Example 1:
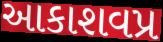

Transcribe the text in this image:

આકાશવપ્ર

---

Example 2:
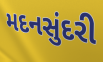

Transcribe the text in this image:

મદનસુંદરી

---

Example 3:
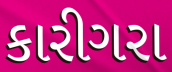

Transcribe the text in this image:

કારીગરા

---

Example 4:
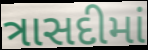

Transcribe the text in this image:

ત્રાસદીમાં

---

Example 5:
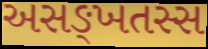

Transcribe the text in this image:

અસઙ્ખતસ્સ